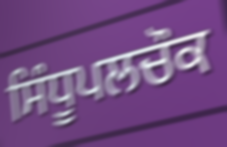
ਸਿੰਧੂਪਲਚੌਕ